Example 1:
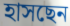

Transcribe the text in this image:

হাসছেন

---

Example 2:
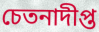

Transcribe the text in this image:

চেতনাদীপ্ত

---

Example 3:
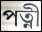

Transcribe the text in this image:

পত্নী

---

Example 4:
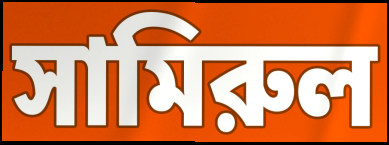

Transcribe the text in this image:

সামিরুল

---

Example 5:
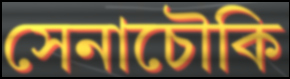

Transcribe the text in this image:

সেনাচৌকি